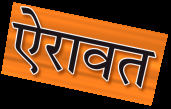
ऐरावत